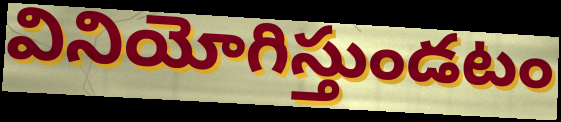
వినియోగిస్తుండటం